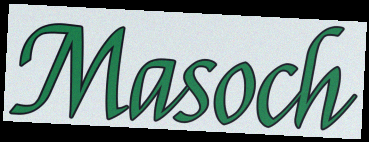
Masoch